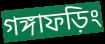
গঙ্গাফড়িং